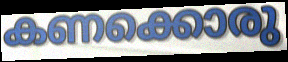
കണക്കൊരു